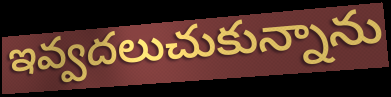
ఇవ్వదలుచుకున్నాను